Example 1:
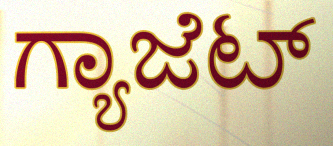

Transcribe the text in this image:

ಗ್ಯಾಜೆಟ್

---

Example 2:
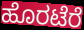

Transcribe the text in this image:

ಹೊರಟೆರೆ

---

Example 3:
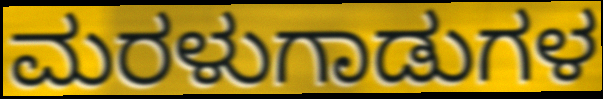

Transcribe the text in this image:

ಮರಳುಗಾಡುಗಳ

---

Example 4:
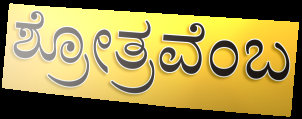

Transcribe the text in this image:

ಶ್ರೋತ್ರವೆಂಬ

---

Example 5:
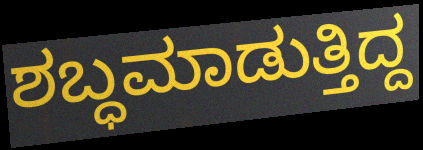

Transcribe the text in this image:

ಶಬ್ಧಮಾಡುತ್ತಿದ್ದ